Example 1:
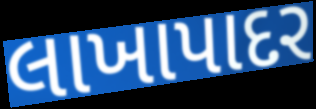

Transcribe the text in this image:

લાખાપાદર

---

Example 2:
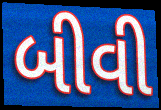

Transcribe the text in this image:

બીવી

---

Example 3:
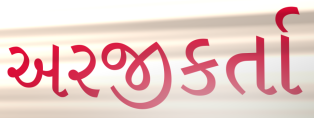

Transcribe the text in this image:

અરજીકર્તા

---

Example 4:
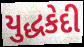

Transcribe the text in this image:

યુદ્ધકેદી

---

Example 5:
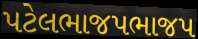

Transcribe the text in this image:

પટેલભાજપભાજપ